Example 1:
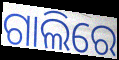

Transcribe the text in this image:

ଗାଲିରେ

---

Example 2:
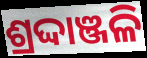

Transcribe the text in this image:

ଶ୍ରଦ୍ଦାଞ୍ଜଳି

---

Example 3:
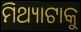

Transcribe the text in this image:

ମିଥ୍ୟାଟାକୁ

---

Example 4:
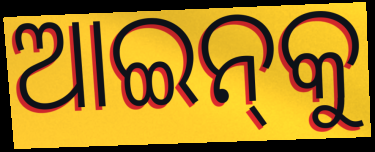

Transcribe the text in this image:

ଆଇନ୍‍କୁ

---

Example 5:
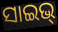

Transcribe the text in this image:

ସାଇଭ୍